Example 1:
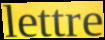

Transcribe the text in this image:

lettre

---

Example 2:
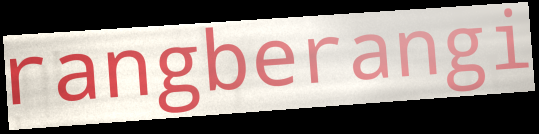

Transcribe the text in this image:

rangberangi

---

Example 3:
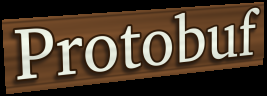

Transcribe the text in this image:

Protobuf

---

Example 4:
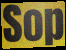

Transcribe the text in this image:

Sop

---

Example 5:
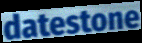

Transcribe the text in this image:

datestone